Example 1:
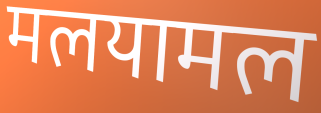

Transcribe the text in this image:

मलयामल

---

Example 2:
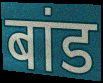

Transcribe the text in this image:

बांड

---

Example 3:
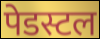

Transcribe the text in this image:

पेडस्टल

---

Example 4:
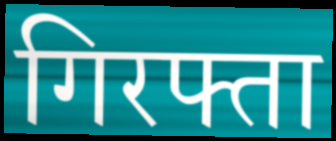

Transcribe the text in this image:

गिरफ्ता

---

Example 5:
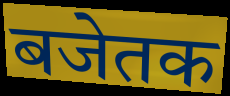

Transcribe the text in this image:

बजेतक